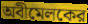
অবীমেলকের